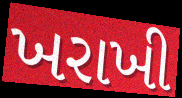
ખરાખી